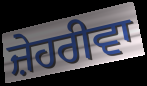
ਜ਼ੇਹਰੀਵਾ